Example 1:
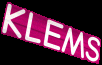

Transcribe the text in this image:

KLEMS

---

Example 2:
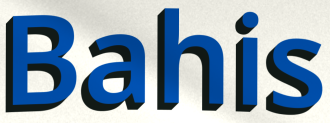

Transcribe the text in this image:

Bahis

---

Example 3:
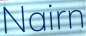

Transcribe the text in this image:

Nairn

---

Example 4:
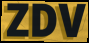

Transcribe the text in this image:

ZDV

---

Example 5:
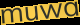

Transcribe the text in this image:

muwa